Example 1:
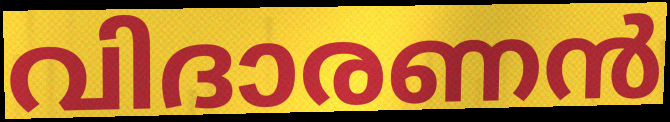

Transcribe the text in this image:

വിദാരണൻ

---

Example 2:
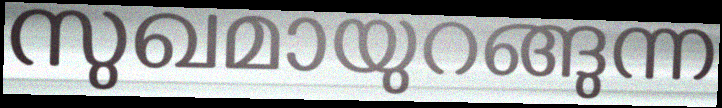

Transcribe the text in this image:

സുഖമായുറങ്ങുന്ന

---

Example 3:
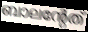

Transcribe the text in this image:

ബാലന്റേത്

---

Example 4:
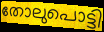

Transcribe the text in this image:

തോലുപൊട്ടി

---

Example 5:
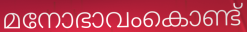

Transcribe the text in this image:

മനോഭാവംകൊണ്ട്